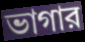
ভাগার